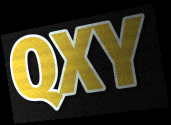
QXY